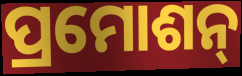
ପ୍ରମୋଶନ୍